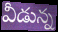
వీడున్న